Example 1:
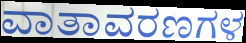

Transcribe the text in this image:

ವಾತಾವರಣಗಳ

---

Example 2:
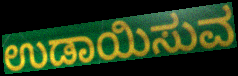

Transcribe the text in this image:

ಉಡಾಯಿಸುವ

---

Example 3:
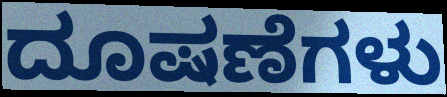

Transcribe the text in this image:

ದೂಷಣೆಗಳು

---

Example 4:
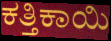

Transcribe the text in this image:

ಕತ್ತಿಕಾಯಿ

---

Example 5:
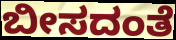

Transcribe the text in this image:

ಬೀಸದಂತೆ